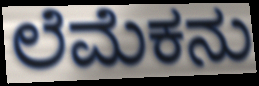
ಲೆಮೆಕನು